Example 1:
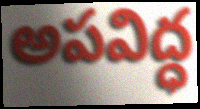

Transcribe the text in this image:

అపవిద్ధ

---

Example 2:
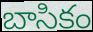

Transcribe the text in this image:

బాసికం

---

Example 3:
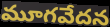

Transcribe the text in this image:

మూగవేదన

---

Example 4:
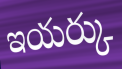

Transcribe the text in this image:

ఇయర్కు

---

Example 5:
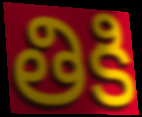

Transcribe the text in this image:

తికి